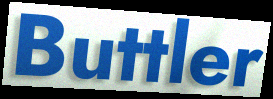
Buttler